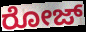
ರೋಜ್